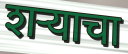
शर्‍याचा